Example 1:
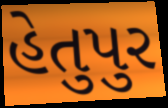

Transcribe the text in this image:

હેતુપુર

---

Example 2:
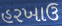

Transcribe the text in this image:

હરખાઉ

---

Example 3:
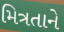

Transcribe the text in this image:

મિત્રતાને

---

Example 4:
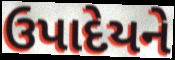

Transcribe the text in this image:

ઉપાદેયને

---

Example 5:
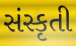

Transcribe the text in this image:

સંસ્કૃતી